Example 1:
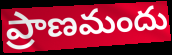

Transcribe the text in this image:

ప్రాణమందు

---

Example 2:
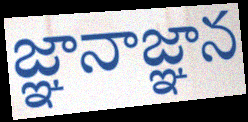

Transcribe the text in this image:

జ్ఞానాజ్ఞాన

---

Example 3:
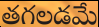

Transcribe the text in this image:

తగలడమే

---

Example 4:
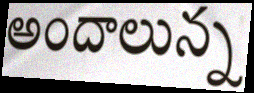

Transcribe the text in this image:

అందాలున్న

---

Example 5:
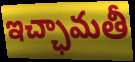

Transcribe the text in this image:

ఇచ్ఛామతీ